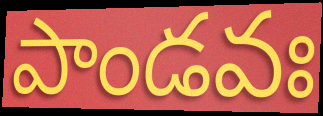
పాండవః